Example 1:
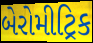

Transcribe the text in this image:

બેરોમીટ્રિક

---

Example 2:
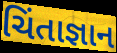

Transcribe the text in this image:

ચિંતાજ્ઞાન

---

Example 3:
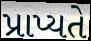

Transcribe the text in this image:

પ્રાપ્યતે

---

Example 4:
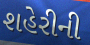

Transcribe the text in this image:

શહેરીની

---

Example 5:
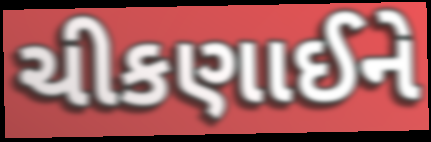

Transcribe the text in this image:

ચીકણાઈને